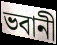
ভবানী